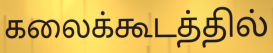
கலைக்கூடத்தில்